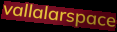
vallalarspace